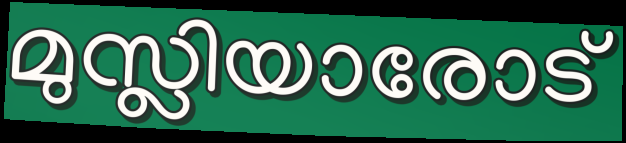
മുസ്ലിയാരോട്